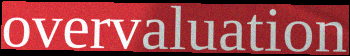
overvaluation